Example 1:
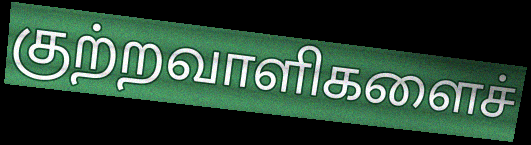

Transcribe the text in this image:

குற்றவாளிகளைச்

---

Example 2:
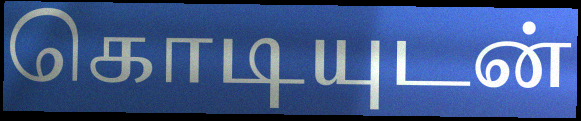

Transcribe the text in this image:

கொடியுடன்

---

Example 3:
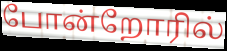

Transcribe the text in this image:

போன்றோரில்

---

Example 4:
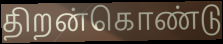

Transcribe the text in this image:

திறன்கொண்டு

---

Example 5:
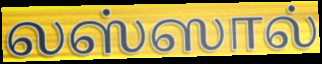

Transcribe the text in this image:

லஸ்ஸால்